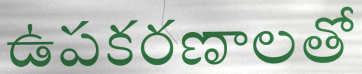
ఉపకరణాలతో